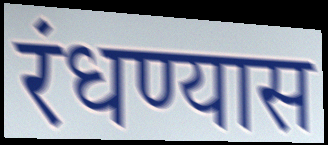
रंधण्यास